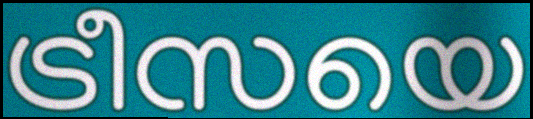
ട്രീസയെ